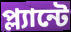
প্ল্যান্টে